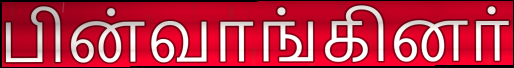
பின்வாங்கினர்